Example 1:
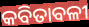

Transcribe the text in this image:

କବିତାବଳୀ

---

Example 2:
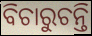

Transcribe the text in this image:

ବିଚାରୁଚନ୍ତି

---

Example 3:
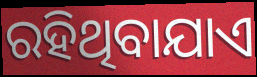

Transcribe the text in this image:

ରହିଥିବାଯାଏ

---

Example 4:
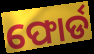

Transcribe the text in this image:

ଫୋର୍ଡ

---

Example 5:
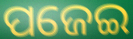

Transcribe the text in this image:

ପଜେଇ